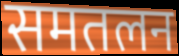
समतलन